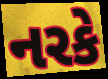
નરકે